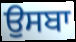
ਉਸਬਾ